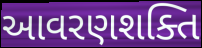
આવરણશક્તિ